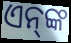
ଏନ୍‌ଙ୍କ